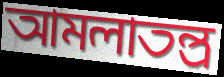
আমলাতন্ত্র